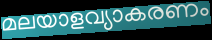
മലയാളവ്യാകരണം